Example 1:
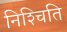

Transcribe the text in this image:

निश्चिति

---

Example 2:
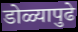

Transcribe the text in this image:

डोळ्यापुढे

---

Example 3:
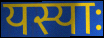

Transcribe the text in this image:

यस्याः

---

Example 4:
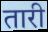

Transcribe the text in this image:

तारी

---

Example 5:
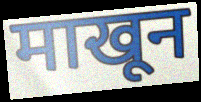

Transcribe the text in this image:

माखून